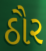
ઠૌર